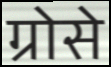
ग्रोसे